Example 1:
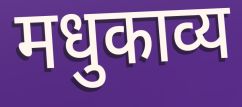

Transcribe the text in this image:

मधुकाव्य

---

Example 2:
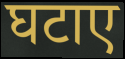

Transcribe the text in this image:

घटाए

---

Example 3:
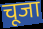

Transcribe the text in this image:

चूजा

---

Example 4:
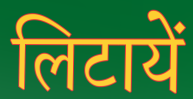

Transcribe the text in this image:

लिटायें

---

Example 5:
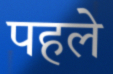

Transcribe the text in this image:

पहले